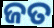
ଜତ